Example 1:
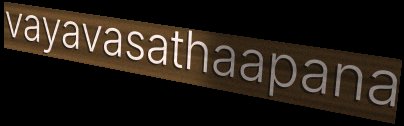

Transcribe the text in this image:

vayavasathaapana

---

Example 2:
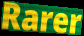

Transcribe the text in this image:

Rarer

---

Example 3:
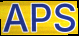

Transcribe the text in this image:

APS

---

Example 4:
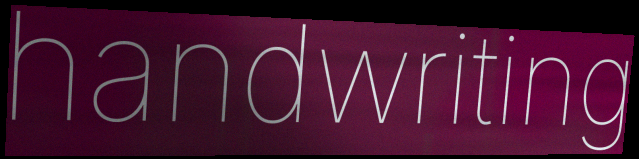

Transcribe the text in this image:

handwriting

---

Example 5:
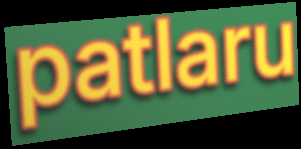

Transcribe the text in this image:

patlaru